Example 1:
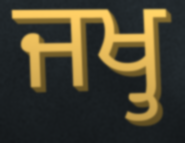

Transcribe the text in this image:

ਜਖ੍ਤ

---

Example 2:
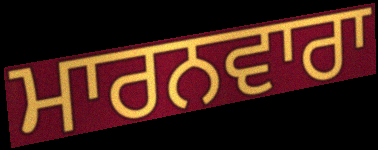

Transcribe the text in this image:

ਮਾਰਨਵਾਰਾ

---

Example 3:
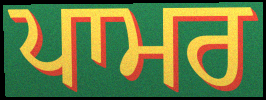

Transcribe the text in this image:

ਪਾਮਰ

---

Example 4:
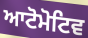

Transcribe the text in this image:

ਆਟੋਮੋਟਿਵ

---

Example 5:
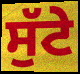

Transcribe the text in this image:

ਸੁੱਟੇ